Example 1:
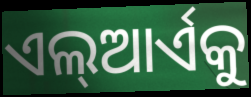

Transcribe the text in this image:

ଏଲ୍ଆର୍ଏକୁ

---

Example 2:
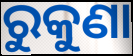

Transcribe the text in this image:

ରୁକୁଣା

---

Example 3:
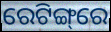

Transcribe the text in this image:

ରେଟିଙ୍ଗ୍‌ରେ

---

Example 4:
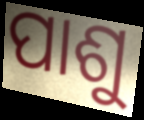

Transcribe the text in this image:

ପାଶୁ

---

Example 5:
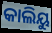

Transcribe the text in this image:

କାଲିୟୁ